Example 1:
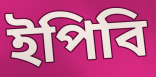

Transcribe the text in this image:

ইপিবি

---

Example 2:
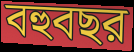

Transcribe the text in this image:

বহুবছর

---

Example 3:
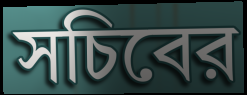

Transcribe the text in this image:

সচিবের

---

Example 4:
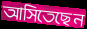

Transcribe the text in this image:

আসিতেছেন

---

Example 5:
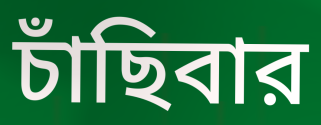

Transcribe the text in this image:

চাঁছিবার